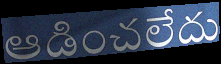
ఆడించలేదు